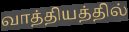
வாத்தியத்தில்